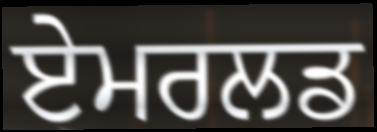
ਏਮਰਲਡ